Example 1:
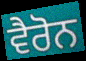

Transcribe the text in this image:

ਵੈਰੋਨ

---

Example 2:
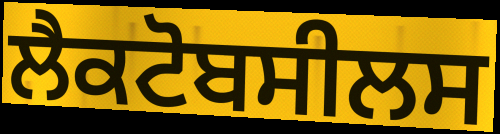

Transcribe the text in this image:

ਲੈਕਟੋਬਸੀਲਸ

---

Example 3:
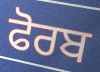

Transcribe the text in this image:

ਫੋਰਬ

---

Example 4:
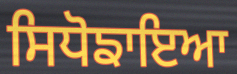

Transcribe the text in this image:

ਸਿਧੋਙਾਇਆ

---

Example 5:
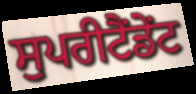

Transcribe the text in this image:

ਸੁਪਰੀਟੈਂਡੇਂਟ